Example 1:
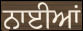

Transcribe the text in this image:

ਨਾਈਆਂ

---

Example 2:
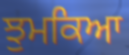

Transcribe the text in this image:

ਝੁਮਕਿਆ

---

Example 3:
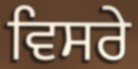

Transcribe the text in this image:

ਵਿਸਰੇ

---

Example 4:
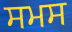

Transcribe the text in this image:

ਸਮਸ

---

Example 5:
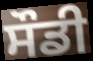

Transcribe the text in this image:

ਸੌਡੀ